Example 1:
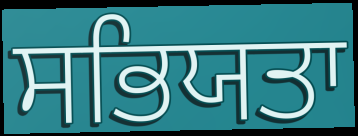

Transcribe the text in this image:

ਸਭਿਯਤਾ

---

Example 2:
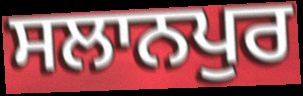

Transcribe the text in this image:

ਸਲਾਨਪੁਰ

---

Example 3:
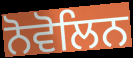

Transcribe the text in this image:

ਨੋਵੋਲਿਨ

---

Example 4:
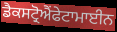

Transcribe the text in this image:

ਡੈਕਸਟ੍ਰੋਐਂਫੇਟਾਮਾਈਨ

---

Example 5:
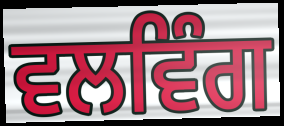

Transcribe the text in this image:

ਵਲਵਿੰਗ